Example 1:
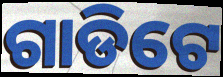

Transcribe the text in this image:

ଗାଡିଟେ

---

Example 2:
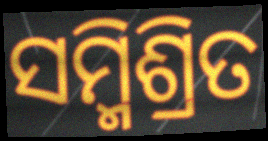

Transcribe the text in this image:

ସମ୍ମିଶ୍ରିତ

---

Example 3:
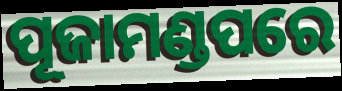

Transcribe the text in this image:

ପୂଜାମଣ୍ଡପରେ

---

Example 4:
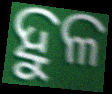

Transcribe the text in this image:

ହୁଳ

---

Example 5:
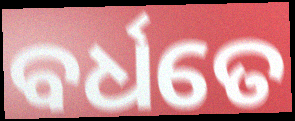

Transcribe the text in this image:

ବର୍ଧତେ